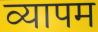
व्यापम